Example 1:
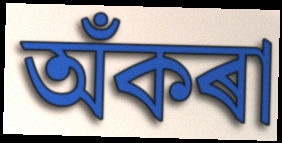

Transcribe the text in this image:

অঁকৰা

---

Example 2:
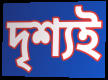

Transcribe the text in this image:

দৃশ্যই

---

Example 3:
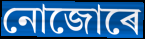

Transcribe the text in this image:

নোজোৰে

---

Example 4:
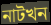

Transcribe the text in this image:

নাটখন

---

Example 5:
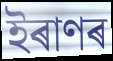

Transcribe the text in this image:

ইৰাণৰ